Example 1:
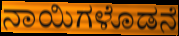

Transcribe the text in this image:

ನಾಯಿಗಳೊಡನೆ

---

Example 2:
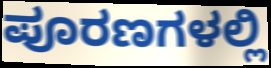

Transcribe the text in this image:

ಪೂರಣಗಳಲ್ಲಿ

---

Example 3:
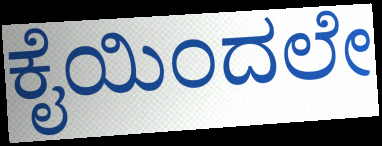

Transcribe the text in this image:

ಕೈಯಿಂದಲೇ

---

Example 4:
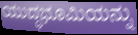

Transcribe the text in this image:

ಯುದ್ಧಭೂಮಿಯನ್ನು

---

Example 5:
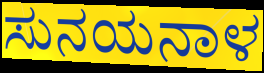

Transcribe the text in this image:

ಸುನಯನಾಳ